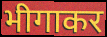
भीगाकर